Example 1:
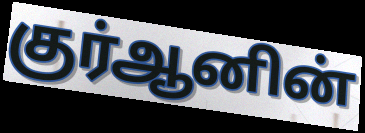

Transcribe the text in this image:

குர்ஆனின்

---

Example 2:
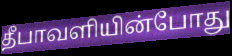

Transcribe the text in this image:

தீபாவளியின்போது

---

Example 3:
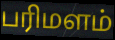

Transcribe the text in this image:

பரிமளம்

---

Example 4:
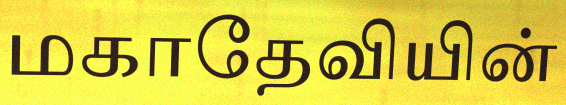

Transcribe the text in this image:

மகாதேவியின்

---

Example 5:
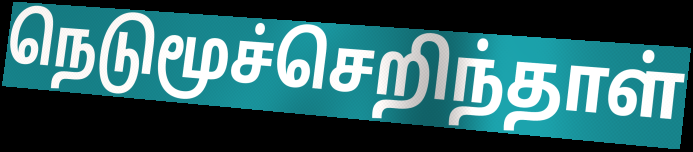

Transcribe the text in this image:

நெடுமூச்செறிந்தாள்